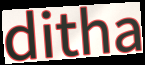
ditha